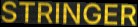
STRINGER